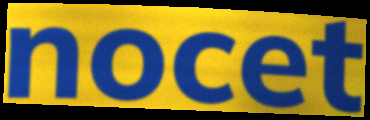
nocet